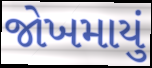
જોખમાયું